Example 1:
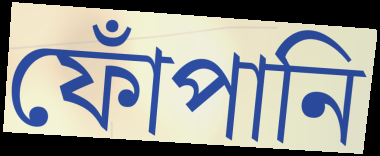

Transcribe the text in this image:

ফোঁপানি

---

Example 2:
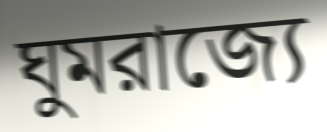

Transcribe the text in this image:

ঘুমরাজ্যে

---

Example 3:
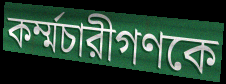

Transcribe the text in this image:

কর্ম্মচারীগণকে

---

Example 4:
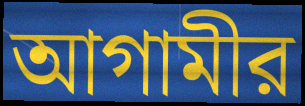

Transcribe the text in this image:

আগামীর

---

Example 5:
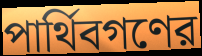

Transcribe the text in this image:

পার্থিবগণের